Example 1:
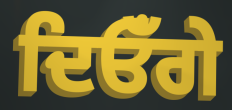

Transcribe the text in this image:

ਦਿਓਁਗੇ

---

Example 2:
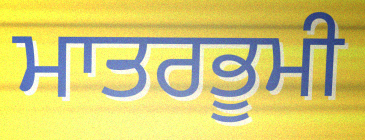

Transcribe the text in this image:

ਮਾਤਰਭੂਮੀ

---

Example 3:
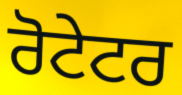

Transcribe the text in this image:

ਰੋਟੇਟਰ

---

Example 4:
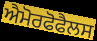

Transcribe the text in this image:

ਐਮੋਰਫੋਫੈਲਸ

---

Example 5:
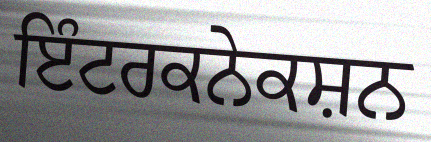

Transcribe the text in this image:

ਇੰਟਰਕਨੇਕਸ਼ਨ